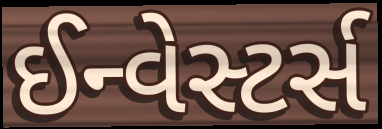
ઈન્વેસ્ટર્સ